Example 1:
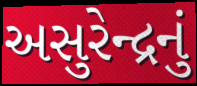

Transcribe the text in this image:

અસુરેન્દ્રનું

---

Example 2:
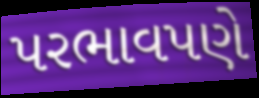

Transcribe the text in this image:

પરભાવપણે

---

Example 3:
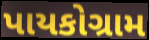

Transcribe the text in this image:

પાયકોગ્રામ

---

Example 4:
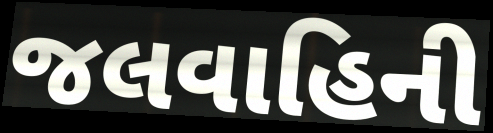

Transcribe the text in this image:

જલવાહિની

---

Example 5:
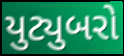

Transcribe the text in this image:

યુટ્યુબરો